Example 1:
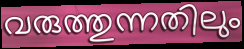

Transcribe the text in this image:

വരുത്തുന്നതിലും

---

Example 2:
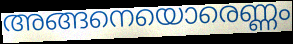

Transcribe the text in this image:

അങ്ങനെയൊരെണ്ണം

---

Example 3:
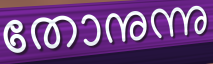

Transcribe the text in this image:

തോനുന്നു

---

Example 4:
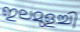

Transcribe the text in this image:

ഇലമുളച്ചി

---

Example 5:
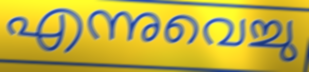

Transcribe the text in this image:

എന്നുവെച്ചു